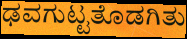
ಢವಗುಟ್ಟತೊಡಗಿತು